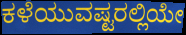
ಕಳೆಯುವಷ್ಟರಲ್ಲಿಯೇ